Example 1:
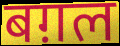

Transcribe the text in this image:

बग़ल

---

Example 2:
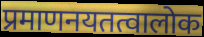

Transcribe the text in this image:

प्रमाणनयतत्वालोक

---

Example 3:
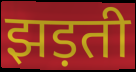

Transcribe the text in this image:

झड़ती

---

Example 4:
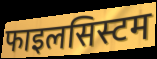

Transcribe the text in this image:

फाइलसिस्टम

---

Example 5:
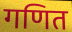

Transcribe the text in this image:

गणित